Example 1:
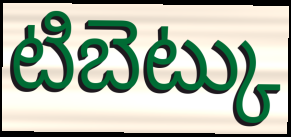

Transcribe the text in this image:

టిబెట్కు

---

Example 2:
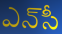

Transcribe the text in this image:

ఎన్‌సీ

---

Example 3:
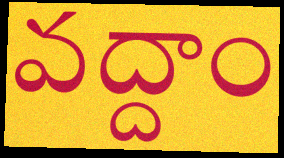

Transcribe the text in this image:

వద్దాం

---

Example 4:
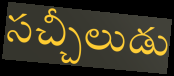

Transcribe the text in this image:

సచ్చీలుడు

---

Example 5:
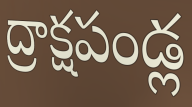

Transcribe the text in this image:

ద్రాక్షపండ్ల